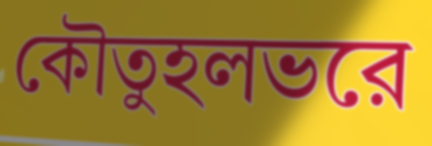
কৌতুহলভরে